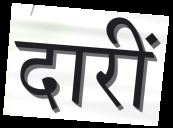
दारीं